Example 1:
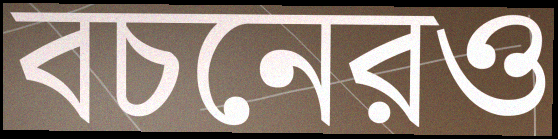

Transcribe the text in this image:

বচনেরও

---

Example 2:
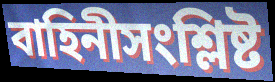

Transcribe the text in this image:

বাহিনীসংশ্লিষ্ট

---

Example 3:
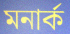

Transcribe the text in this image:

মনার্ক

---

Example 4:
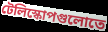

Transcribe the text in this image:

টেলিস্কোপগুলোতে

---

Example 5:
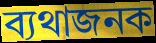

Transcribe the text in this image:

ব্যথাজনক